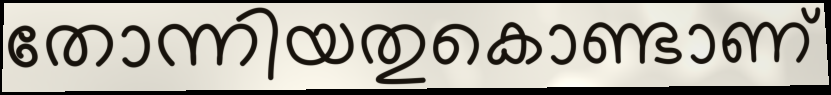
തോന്നിയതുകൊണ്ടാണ്